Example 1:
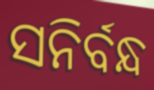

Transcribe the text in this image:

ସନିର୍ବନ୍ଧ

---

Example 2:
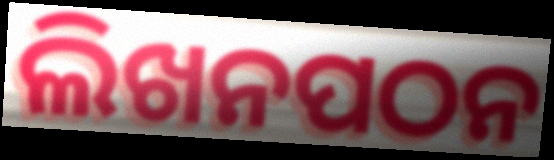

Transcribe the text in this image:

ଲିଖନପଠନ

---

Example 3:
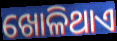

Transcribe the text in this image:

ଖୋଳିଥାଏ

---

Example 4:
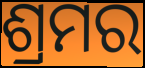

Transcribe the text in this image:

ଶ୍ରମର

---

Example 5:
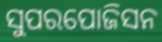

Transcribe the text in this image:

ସୁପରପୋଜିସନ